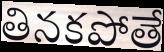
తినకపోతే